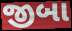
જીબા